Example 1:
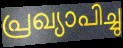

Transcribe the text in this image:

പ്രഖ്യാപിച്ചു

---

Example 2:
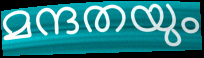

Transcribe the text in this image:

മന്ദതയും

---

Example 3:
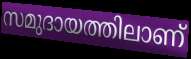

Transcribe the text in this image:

സമുദായത്തിലാണ്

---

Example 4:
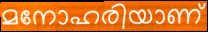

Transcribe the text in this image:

മനോഹരിയാണ്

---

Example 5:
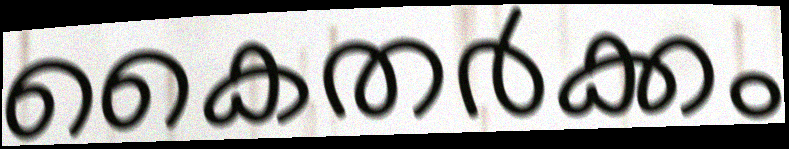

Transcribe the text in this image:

കൈതർക്കം